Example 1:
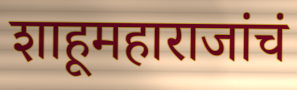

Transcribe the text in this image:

शाहूमहाराजांचं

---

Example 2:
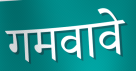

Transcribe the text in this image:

गमवावे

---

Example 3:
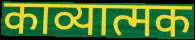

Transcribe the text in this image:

काव्यात्मक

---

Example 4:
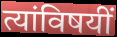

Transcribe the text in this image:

त्यांविषयीं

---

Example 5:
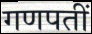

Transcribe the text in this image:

गणपतीं